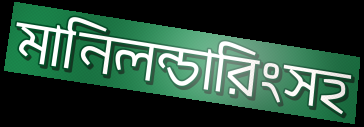
মানিলন্ডারিংসহ